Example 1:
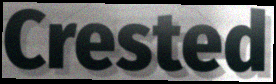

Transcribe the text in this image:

Crested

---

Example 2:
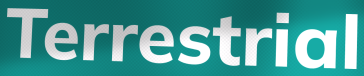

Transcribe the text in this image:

Terrestrial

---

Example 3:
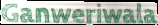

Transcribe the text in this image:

Ganweriwala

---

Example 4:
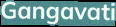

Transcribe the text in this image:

Gangavati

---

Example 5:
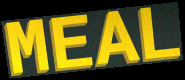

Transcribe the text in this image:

MEAL